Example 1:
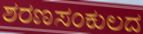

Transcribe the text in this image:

ಶರಣಸಂಕುಲದ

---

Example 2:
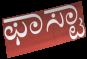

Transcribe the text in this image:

ಫಾಸ್ಟಾ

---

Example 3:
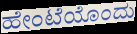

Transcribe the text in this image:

ಹೇಂಟೆಯೊಂದು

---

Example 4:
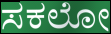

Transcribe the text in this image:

ಸಕಲೋ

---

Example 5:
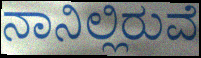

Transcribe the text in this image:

ನಾನಿಲ್ಲಿರುವೆ